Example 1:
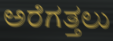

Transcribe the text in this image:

ಅರೆಗತ್ತಲು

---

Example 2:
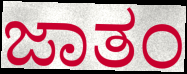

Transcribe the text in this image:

ಜಾತಂ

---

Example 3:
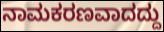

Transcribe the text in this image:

ನಾಮಕರಣವಾದದ್ದು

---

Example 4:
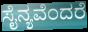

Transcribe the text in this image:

ಸೈನ್ಯವೆಂದರೆ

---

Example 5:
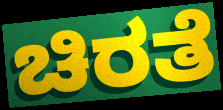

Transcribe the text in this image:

ಚಿರತೆ